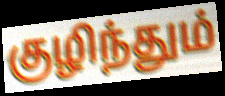
குழிந்தும்